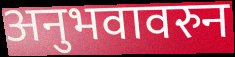
अनुभवावरुन